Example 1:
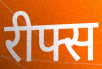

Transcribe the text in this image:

रीफ्स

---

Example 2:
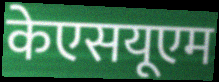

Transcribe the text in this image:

केएसयूएम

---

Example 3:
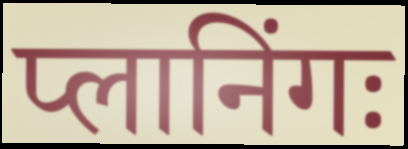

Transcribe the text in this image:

प्लानिंगः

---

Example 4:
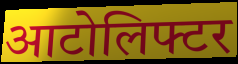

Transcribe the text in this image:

आटोलिफ्टर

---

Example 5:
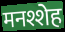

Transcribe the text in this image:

मनश्शेह